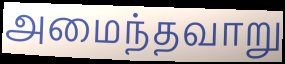
அமைந்தவாறு